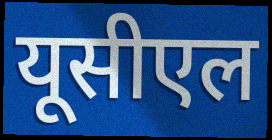
यूसीएल